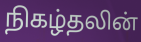
நிகழ்தலின்